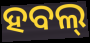
ହବଲ୍